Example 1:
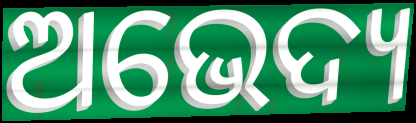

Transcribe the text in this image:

ଅଭେଦ୍ୟ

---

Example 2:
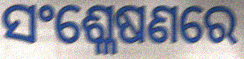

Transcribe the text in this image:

ସଂଶ୍ଳେଷଣରେ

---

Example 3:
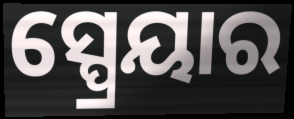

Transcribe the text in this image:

ସ୍ପ୍ରେୟାର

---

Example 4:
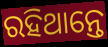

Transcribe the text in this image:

ରହିଥାନ୍ତେ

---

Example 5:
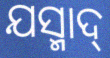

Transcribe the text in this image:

ଯସ୍ମାଦ୍